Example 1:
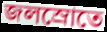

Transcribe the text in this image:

জলস্রোতে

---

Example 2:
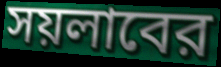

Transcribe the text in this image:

সয়লাবের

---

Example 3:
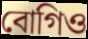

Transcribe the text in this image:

বোগিও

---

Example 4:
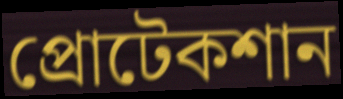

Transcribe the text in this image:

প্রোটেকশান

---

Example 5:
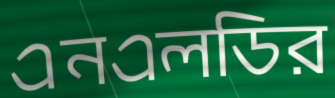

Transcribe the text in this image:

এনএলডির